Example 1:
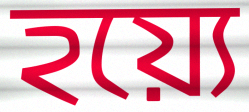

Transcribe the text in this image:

হয়্যে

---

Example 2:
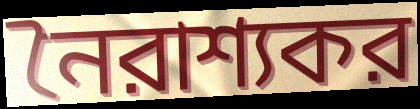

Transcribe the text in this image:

নৈরাশ্যকর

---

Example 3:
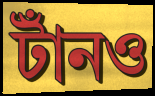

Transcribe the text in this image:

টাঁনও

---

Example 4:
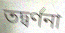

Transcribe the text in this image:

তদ্বর্ণনা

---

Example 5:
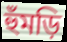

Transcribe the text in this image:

হুঁমড়ি